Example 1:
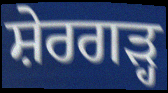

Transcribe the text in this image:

ਸ਼ੇਰਗੜ੍ਹ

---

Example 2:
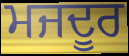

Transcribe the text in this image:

ਮਜਦੂਰ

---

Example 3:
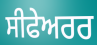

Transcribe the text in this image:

ਸੀਫੇਅਰਰ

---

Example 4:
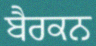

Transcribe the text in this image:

ਬੈਰਕਨ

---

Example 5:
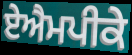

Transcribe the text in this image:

ਏਐਮਪੀਕੇ